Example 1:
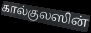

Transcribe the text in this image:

கால்குலஸின்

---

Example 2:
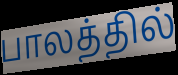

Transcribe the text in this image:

பாலத்தில்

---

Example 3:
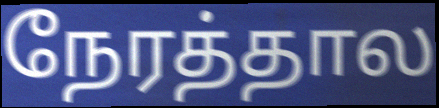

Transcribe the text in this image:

நேரத்தால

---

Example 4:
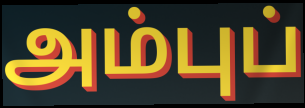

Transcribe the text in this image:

அம்புப்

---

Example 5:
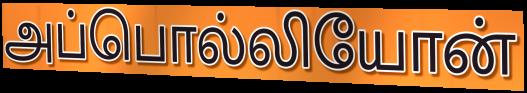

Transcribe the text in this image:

அப்பொல்லியோன்